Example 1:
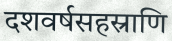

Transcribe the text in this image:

दशवर्षसहस्राणि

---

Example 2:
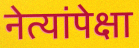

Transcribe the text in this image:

नेत्यांपेक्षा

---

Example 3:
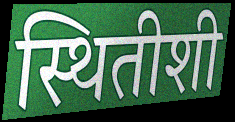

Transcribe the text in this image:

स्थितीशी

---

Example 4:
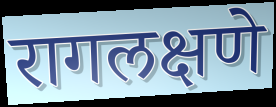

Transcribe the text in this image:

रागलक्षणे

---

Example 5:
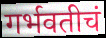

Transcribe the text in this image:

गर्भवतीचं